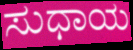
ಸುಧಾಯ